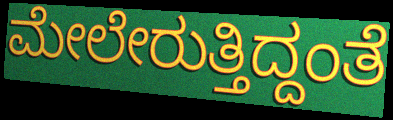
ಮೇಲೇರುತ್ತಿದ್ದಂತೆ